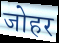
जोहर